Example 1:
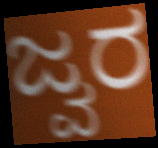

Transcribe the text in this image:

ಜ್ವರ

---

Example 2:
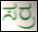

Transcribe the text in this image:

ಸರ್ರ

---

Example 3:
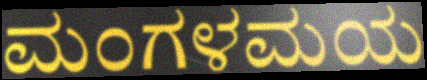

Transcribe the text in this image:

ಮಂಗಳಮಯ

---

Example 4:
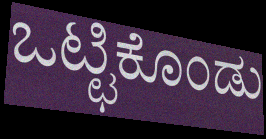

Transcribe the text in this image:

ಒಟ್ಟಿಕೊಂಡು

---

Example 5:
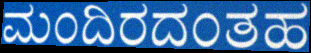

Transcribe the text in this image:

ಮಂದಿರದಂತಹ